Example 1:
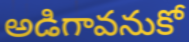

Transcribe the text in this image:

అడిగావనుకో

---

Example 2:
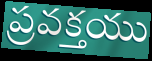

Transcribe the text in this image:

ప్రవక్తయు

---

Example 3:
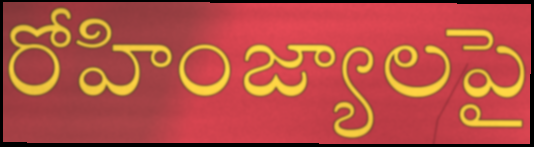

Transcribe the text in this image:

రోహింజ్యాలపై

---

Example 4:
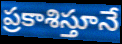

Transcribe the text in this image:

ప్రకాశిస్తూనే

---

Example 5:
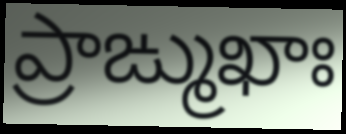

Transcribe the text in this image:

ప్రాఙ్ముఖాః